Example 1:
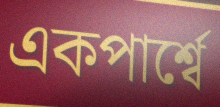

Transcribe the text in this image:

একপার্শ্বে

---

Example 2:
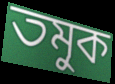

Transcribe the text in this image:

তমুক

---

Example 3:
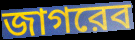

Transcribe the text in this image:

জাগরেব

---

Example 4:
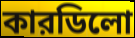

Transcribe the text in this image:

কারডিলো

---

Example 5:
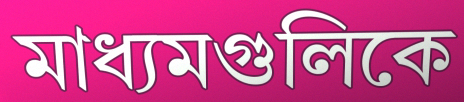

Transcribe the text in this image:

মাধ্যমগুলিকে